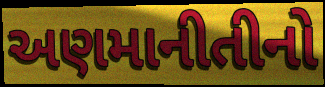
અણમાનીતીનો